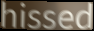
hissed